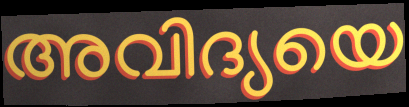
അവിദ്യയെ